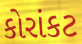
કોરાંકટ